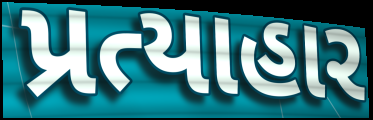
પ્રત્યાહાર